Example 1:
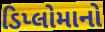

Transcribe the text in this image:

ડિપ્લોમાનો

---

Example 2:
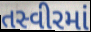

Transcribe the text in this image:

તસ્વીરમાં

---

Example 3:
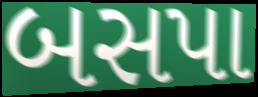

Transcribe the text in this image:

બસપા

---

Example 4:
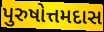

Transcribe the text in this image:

પુરુષોત્તમદાસ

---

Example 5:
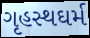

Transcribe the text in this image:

ગૃહસ્થઘર્મ